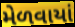
મેળવાયાં